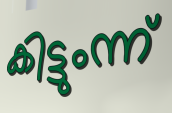
കിട്ടുംന്ന്